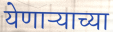
येणाऱ्याच्या